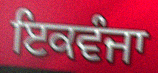
ਇਕਵੰਜਾ